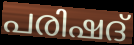
പരിഷദ്